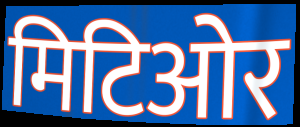
मिटिओर